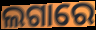
ଲଗାରେ